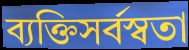
ব্যক্তিসর্বস্বতা